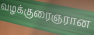
வழக்குரைஞரான